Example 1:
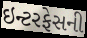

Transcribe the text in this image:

ઇન્ટરફેસની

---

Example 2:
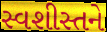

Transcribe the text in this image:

સ્વશીસ્તને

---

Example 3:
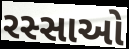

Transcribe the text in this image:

રસ્સાઓ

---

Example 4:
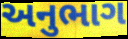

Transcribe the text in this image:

અનુભાગ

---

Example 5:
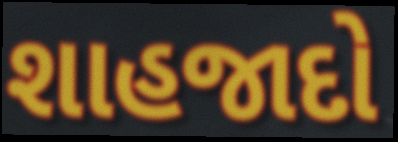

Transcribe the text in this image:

શાહજાદો